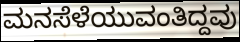
ಮನಸೆಳೆಯುವಂತಿದ್ದವು